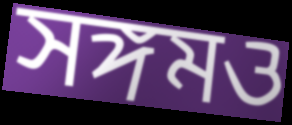
সঙ্গমও